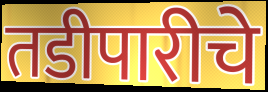
तडीपारीचे